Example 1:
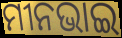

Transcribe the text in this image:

ମୀନଭାଇ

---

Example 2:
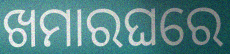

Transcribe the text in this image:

ଖମାରଘରେ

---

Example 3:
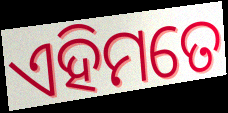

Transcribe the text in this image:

ଏହିମତେ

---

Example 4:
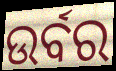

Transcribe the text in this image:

ଉର୍ବର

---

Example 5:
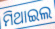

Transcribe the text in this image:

ମିଥାଇଲ